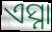
ଏସ୍ନା